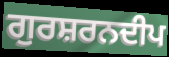
ਗੁਰਸ਼ਰਨਦੀਪ